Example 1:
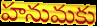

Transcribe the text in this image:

హనుమకు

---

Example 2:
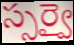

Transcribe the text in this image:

స్సర్వై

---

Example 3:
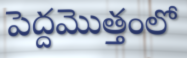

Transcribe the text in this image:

పెద్దమొత్తంలో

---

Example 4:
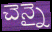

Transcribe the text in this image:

చెన్నై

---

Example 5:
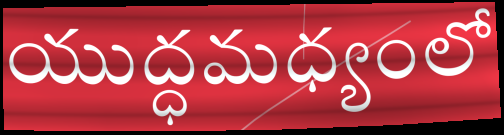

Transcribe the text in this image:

యుద్ధమధ్యంలో